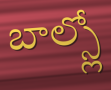
బాల్స్లో